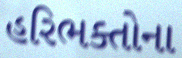
હરિભક્તોના